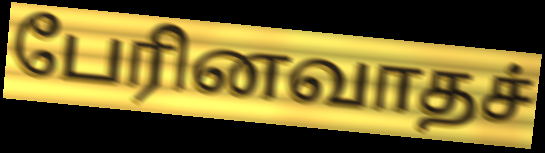
பேரினவாதச்